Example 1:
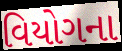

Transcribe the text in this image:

વિયોગના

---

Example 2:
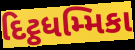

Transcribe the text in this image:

દિટ્ઠધમ્મિકા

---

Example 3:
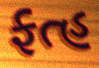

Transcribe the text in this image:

ફત્હ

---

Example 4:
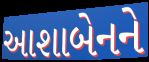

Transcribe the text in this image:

આશાબેનને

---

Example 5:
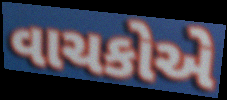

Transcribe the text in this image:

વાચકોએ